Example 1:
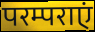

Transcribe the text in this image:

परम्पराएं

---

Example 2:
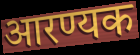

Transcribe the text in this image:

आरण्यक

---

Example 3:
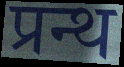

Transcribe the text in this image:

प्रन्थ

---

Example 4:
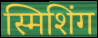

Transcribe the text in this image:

स्मिशिंग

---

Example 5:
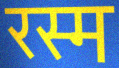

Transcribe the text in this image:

रस्म